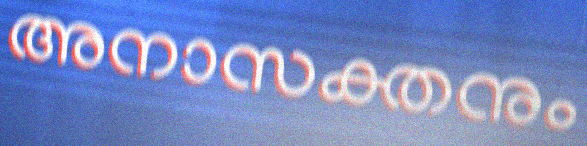
അനാസക്തനും